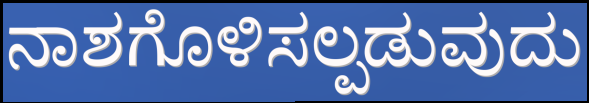
ನಾಶಗೊಳಿಸಲ್ಪಡುವುದು